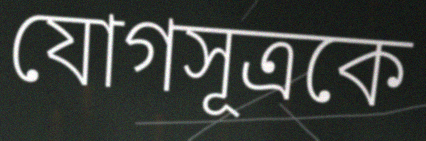
যোগসূত্রকে